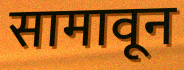
सामावून